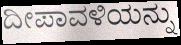
ದೀಪಾವಳಿಯನ್ನು